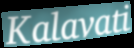
Kalavati